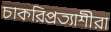
চাকরিপ্রত্যাশীরা